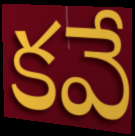
కవే